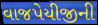
વાજપેયીજીની